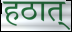
हठात्